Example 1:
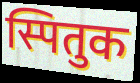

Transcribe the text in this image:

स्पितुक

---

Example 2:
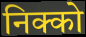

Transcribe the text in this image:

निक्को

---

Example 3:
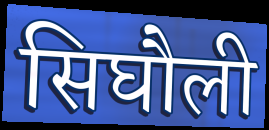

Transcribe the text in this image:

सिघौली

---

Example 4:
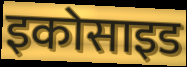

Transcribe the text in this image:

इकोसाइड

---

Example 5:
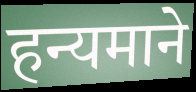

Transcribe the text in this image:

हन्यमाने